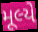
મૂલ્યે